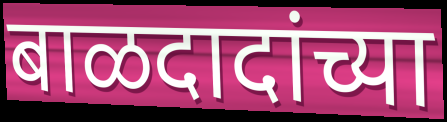
बाळदादांच्या